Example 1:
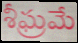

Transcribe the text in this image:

శీఘ్రమే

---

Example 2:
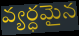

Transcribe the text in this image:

వ్యర్ధమైన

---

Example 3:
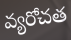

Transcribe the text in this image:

వ్యరోచత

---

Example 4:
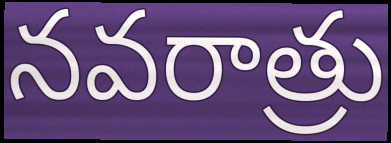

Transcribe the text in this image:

నవరాత్రు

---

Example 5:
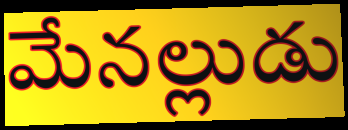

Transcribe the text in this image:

మేనల్లుడు